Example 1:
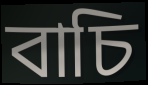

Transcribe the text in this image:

বাচি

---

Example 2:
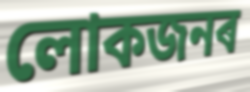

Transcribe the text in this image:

লোকজনৰ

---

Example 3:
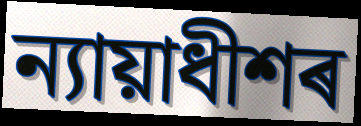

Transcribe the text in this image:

ন্যায়াধীশৰ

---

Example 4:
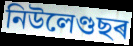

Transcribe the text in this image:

নিউলেণ্ডছৰ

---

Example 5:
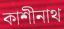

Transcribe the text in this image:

কাশীনাথ